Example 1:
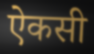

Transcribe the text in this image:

ऐकसी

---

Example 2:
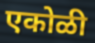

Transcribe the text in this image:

एकोळी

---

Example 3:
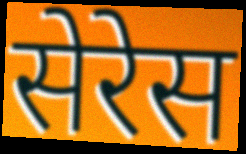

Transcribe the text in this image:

सेरेस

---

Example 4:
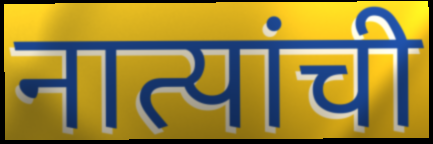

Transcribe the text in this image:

नात्यांची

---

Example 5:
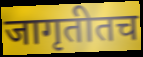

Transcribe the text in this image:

जागृतीतच